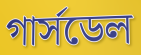
গার্সডেল